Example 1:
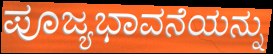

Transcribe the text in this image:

ಪೂಜ್ಯಭಾವನೆಯನ್ನು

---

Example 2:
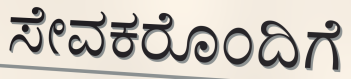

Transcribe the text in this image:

ಸೇವಕರೊಂದಿಗೆ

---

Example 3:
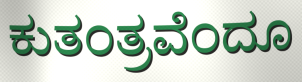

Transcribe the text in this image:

ಕುತಂತ್ರವೆಂದೂ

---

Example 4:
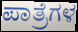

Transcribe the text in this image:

ಪಾತ್ರೆಗಳ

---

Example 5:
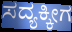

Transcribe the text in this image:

ಸದ್ಯಕ್ಕೀಗ